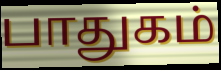
பாதுகம்